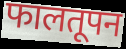
फालतूपन